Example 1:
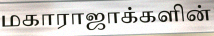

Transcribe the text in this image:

மகாராஜாக்களின்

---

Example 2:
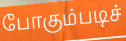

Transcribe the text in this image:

போகும்படிச்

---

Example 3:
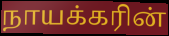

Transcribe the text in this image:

நாயக்கரின்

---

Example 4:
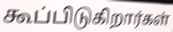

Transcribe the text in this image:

கூப்பிடுகிறார்கள்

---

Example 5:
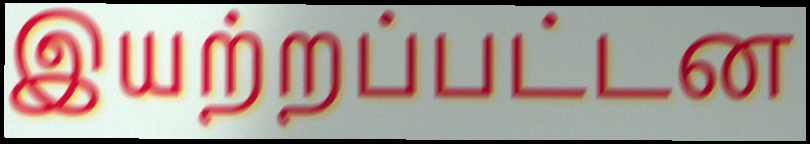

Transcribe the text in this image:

இயற்றப்பட்டன